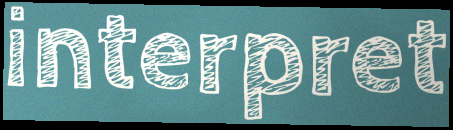
interpret